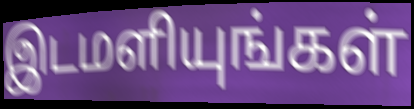
இடமளியுங்கள்